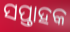
ସପ୍ତାହକ